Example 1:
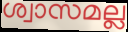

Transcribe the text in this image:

ശ്വാസമല്ല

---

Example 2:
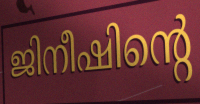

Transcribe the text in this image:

ജിനീഷിന്റെ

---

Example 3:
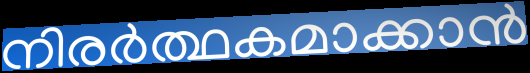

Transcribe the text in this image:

നിരർത്ഥകമാക്കാൻ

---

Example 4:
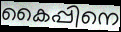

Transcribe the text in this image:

കൈപ്പിനെ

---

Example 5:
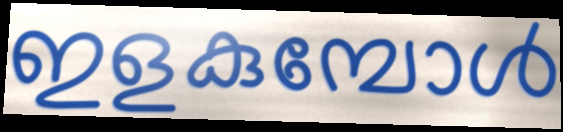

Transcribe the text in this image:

ഇളകുമ്പോൾ